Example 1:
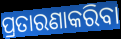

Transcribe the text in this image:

ପ୍ରତାରଣାକରିବା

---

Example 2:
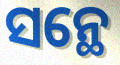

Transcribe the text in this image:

ସନ୍ଥେ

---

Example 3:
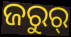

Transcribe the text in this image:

ଜରୁର୍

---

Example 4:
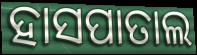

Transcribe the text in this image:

ହାସପାତାଲ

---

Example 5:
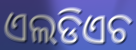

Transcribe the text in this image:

ଏଲଡିଏଚ